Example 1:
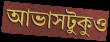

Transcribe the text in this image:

আভাসটুকুও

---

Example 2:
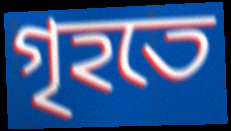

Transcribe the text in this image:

গৃহতে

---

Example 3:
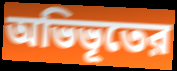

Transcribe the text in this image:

অভিভূতের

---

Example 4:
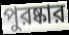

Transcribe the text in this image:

পুরষ্কার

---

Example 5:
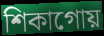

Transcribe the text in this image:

শিকাগোয়